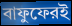
বাফুফেরই